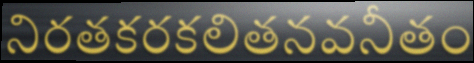
నిరతకరకలితనవనీతం